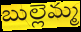
బుల్లెమ్మ